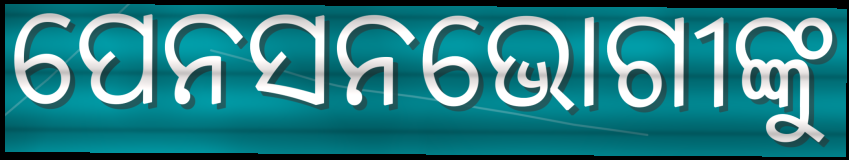
ପେନସନଭୋଗୀଙ୍କୁ